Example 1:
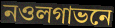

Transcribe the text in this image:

নওলগাভনে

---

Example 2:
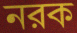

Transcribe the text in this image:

নরক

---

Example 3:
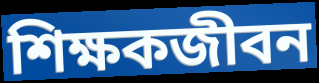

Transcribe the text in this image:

শিক্ষকজীবন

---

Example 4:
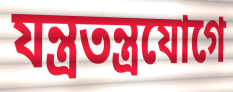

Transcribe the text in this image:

যন্ত্রতন্ত্রযোগে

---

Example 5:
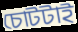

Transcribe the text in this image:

চোটটাই